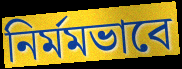
নির্মমভাবে